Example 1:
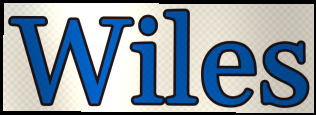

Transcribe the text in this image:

Wiles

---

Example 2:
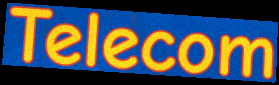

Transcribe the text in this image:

Telecom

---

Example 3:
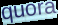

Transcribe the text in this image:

quora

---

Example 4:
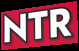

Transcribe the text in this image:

NTR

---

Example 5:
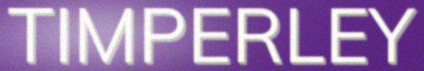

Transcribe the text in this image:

TIMPERLEY